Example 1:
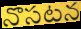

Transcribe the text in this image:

నొసటన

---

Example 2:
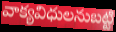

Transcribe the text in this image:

వాక్యవిధులనుబట్టి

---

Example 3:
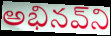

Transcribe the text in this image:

అభినవ్‌ని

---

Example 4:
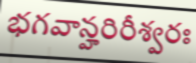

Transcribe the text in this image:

భగవాన్హరిరీశ్వరః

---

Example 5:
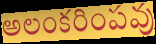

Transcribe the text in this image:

అలంకరింపవు